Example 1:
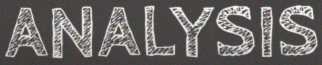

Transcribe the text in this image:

ANALYSIS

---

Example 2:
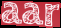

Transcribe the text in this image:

aar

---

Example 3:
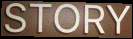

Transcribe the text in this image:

STORY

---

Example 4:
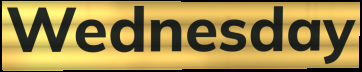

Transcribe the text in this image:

Wednesday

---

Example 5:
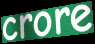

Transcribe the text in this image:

crore